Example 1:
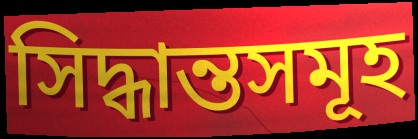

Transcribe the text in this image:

সিদ্ধান্তসমূহ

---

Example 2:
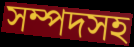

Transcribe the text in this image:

সম্পদসহ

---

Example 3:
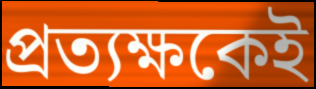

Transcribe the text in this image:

প্রত্যক্ষকেই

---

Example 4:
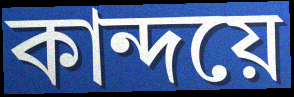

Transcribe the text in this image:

কান্দয়ে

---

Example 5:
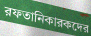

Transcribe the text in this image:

রফতানিকারকদের